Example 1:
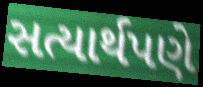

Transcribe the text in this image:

સત્યાર્થપણે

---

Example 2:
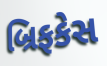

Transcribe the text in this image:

બ્રિફકેસ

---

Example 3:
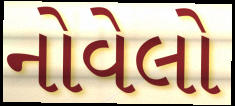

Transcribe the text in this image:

નોવેલો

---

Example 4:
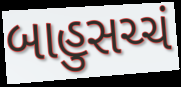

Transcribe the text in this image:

બાહુસચ્ચં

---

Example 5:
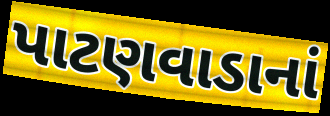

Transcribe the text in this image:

પાટણવાડાનાં